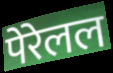
पेरेलल